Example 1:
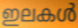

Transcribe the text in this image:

ഇലകൾ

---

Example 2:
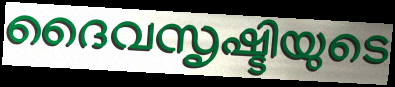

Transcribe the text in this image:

ദൈവസൃഷ്ടിയുടെ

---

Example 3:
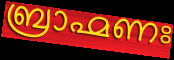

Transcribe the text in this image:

ബ്രാഹ്മണഃ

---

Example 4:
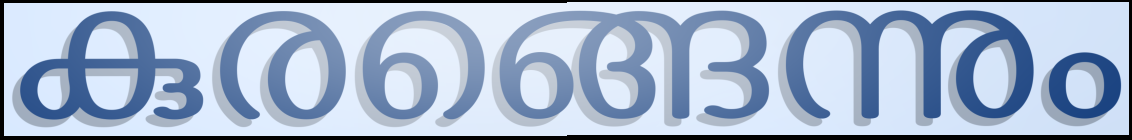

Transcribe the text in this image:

കുരങ്ങെന്നും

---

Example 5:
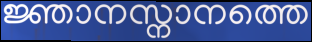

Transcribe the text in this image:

ജ്ഞാനസ്നാനത്തെ